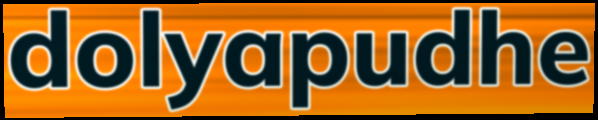
dolyapudhe